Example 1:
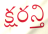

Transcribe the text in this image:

క్షరన్తి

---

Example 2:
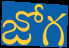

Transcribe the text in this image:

జోగ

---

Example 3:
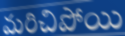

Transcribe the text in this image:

మరిచిపోయి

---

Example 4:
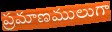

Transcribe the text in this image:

ప్రమాణములుగా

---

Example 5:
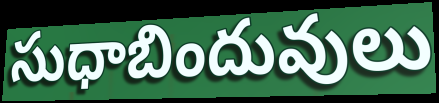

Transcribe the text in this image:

సుధాబిందువులు